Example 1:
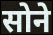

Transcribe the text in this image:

सोने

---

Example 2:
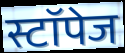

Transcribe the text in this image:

स्टॉपेज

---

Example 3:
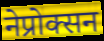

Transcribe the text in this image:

नेप्रोक्सन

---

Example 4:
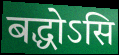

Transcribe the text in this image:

बद्धोऽसि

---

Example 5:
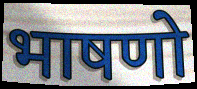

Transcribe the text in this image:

भाषणो